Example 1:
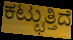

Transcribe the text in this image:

ಕಟ್ಟುತ್ತಿದೆ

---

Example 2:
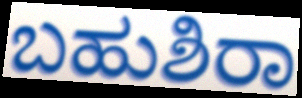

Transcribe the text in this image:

ಬಹುಶಿರಾ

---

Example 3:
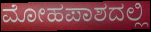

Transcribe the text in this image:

ಮೋಹಪಾಶದಲ್ಲಿ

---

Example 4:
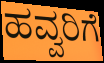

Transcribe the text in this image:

ಹವ್ವರಿಗೆ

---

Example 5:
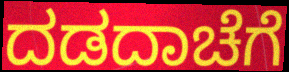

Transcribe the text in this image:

ದಡದಾಚೆಗೆ